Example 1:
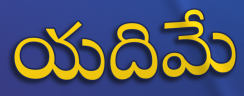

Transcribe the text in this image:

యదిమే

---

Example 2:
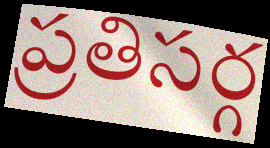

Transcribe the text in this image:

ప్రతిసర్గ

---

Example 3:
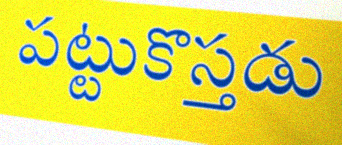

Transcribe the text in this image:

పట్టుకొస్తడు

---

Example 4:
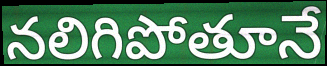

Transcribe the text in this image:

నలిగిపోతూనే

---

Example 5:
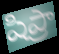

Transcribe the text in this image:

షిప్రా